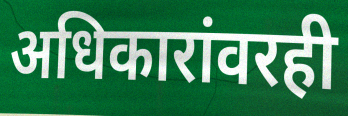
अधिकारांवरही